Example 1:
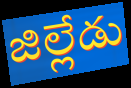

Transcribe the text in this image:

జిల్లేడు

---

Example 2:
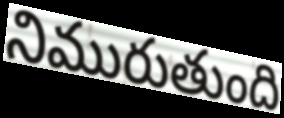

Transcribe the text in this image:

నిమురుతుంది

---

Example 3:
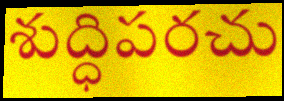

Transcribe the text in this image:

శుద్ధిపరచు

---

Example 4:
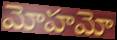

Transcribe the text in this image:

మోహమో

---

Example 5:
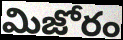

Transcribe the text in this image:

మిజోరం